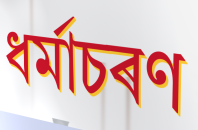
ধৰ্মাচৰণ